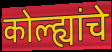
कोल्ह्यांचे